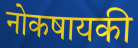
नोकषायकी